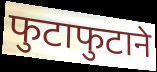
फुटाफुटाने